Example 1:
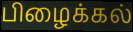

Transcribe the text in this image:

பிழைக்கல்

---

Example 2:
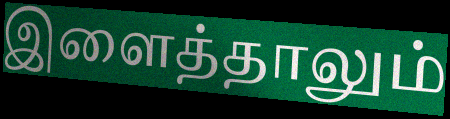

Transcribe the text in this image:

இளைத்தாலும்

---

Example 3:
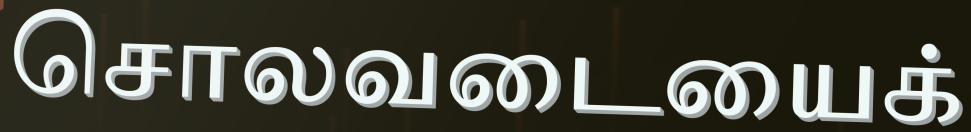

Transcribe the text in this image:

சொலவடையைக்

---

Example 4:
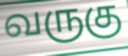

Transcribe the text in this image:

வருகு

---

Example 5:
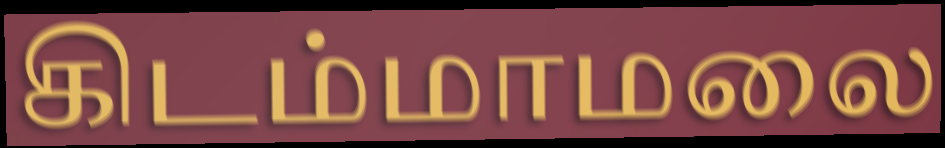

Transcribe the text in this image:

கிடம்மாமலை